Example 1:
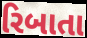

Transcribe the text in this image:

રિબાતા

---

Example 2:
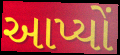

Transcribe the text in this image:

આપ્યોં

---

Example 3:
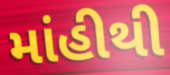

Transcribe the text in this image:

માંહીથી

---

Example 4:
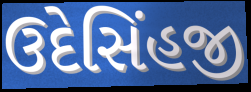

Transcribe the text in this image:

ઉદેસિંહજી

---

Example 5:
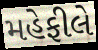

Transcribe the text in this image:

મહેફીલે